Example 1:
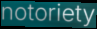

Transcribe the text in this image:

notoriety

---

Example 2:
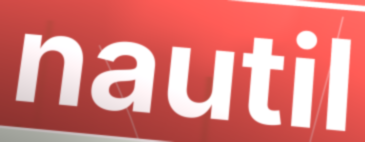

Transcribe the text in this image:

nautil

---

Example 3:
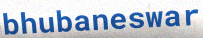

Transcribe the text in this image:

bhubaneswar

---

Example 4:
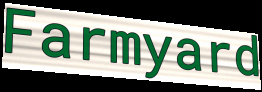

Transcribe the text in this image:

Farmyard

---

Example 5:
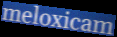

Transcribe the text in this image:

meloxicam